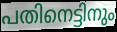
പതിനെട്ടിനും